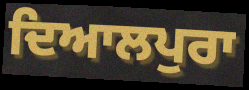
ਦਿਆਲਪੁਰਾ